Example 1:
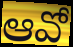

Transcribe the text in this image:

ఆవో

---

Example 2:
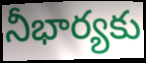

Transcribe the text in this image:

నీభార్యకు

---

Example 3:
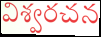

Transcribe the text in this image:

విశ్వరచన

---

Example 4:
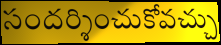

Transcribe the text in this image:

సందర్శించుకోవచ్చు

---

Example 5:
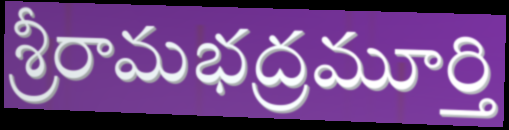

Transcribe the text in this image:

శ్రీరామభద్రమూర్తి